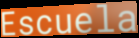
Escuela